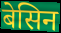
बेसिन